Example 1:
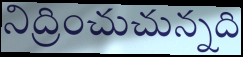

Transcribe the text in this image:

నిద్రించుచున్నది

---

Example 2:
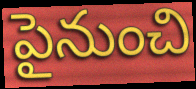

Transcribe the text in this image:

పైనుంచి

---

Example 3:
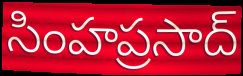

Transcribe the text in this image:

సింహప్రసాద్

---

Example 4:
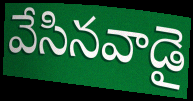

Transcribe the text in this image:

వేసినవాడై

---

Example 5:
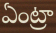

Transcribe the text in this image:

ఏంట్రా